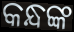
କନ୍ଧଙ୍କ